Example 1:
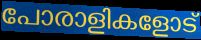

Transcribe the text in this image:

പോരാളികളോട്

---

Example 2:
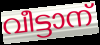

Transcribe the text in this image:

വീട്ടാന്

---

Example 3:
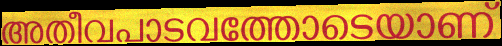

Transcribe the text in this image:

അതീവപാടവത്തോടെയാണ്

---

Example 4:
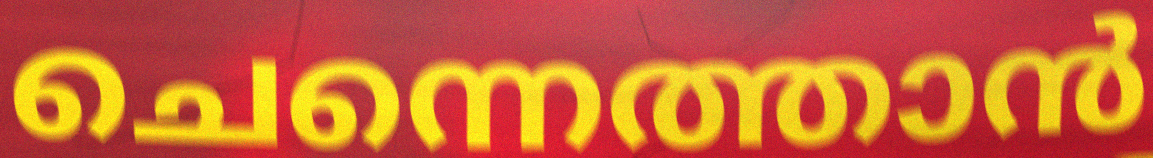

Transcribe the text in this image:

ചെന്നെത്താൻ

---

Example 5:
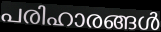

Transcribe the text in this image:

പരിഹാരങ്ങൾ